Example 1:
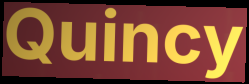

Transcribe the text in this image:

Quincy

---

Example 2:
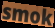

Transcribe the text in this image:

smok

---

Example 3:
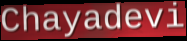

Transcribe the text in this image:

Chayadevi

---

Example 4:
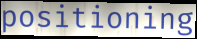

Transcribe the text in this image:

positioning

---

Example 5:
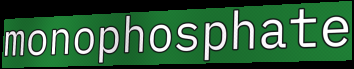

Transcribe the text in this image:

monophosphate